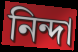
নিন্দা